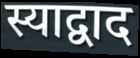
स्याद्वाद